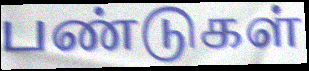
பண்டுகள்